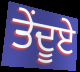
ਤੇਂਦੂਏ